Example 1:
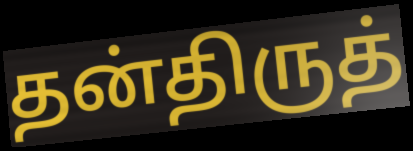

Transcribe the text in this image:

தன்திருத்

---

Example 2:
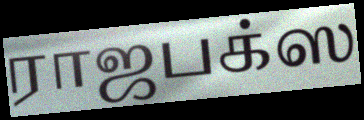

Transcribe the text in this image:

ராஜபக்ஸ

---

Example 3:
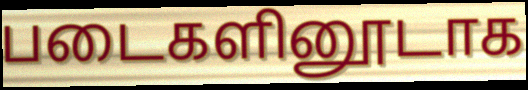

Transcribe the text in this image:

படைகளினூடாக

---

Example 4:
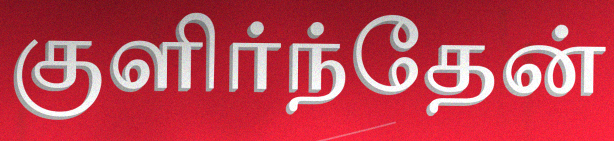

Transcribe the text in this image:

குளிர்ந்தேன்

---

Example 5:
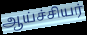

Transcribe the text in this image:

ஆய்ச்சியர்